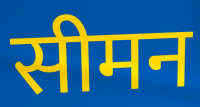
सीमन